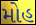
મોહ